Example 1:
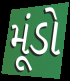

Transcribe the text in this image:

મૂંડો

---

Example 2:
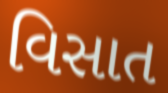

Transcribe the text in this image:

વિસાત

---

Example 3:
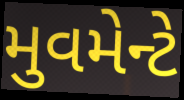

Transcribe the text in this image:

મુવમેન્ટે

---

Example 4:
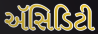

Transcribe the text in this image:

ઍસિડિટી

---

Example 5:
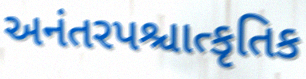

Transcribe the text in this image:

અનંતરપશ્ચાત્કૃતિક